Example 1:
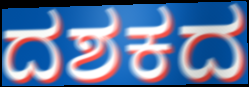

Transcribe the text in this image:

ದಶಕದ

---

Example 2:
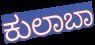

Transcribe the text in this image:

ಕುಲಾಬಾ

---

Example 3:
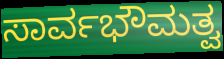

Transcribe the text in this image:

ಸಾರ್ವಭೌಮತ್ವ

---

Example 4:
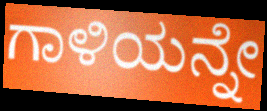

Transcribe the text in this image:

ಗಾಳಿಯನ್ನೇ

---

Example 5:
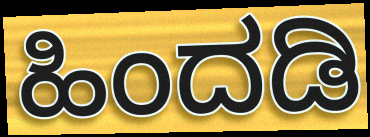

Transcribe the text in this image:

ಹಿಂದಡಿ